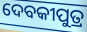
ଦେବକୀପୁତ୍ର